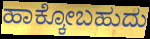
ಹಾಕ್ಕೋಬಹುದು